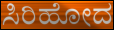
ಸಿರಿಹೋದ